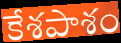
కేశపాశం